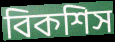
বিকশিস